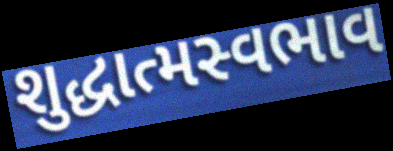
શુદ્ધાત્મસ્વભાવ